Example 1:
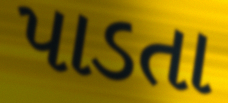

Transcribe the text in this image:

પાડતા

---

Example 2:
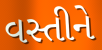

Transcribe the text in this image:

વસ્તીને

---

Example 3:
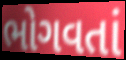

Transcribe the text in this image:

ભોગવતાં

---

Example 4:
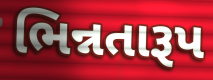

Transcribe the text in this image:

ભિન્નતારૂપ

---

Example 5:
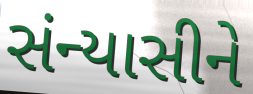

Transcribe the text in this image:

સંન્યાસીને